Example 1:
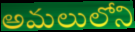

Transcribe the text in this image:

అమలులోని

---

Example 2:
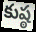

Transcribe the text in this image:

కుష్ఠ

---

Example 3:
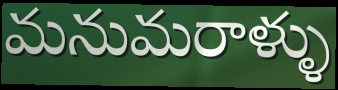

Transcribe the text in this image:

మనుమరాళ్ళు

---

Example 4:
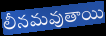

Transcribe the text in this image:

లీనమవుతాయి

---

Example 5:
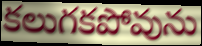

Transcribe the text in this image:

కలుగకపోవును